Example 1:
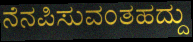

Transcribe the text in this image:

ನೆನಪಿಸುವಂತಹದ್ದು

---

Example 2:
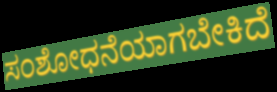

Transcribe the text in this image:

ಸಂಶೋಧನೆಯಾಗಬೇಕಿದೆ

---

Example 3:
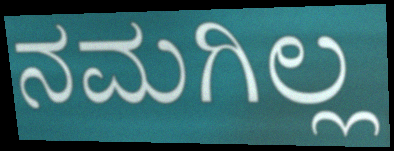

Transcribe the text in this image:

ನಮಗಿಲ್ಲ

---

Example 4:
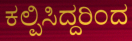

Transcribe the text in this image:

ಕಲ್ಪಿಸಿದ್ದರಿಂದ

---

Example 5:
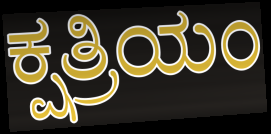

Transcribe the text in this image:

ಕ್ಷತ್ರಿಯಂ